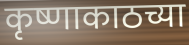
कृष्णाकाठच्या